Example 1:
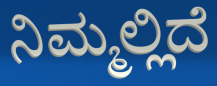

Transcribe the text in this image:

ನಿಮ್ಮಲ್ಲಿದೆ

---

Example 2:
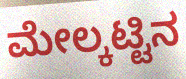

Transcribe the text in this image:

ಮೇಲ್ಕಟ್ಟಿನ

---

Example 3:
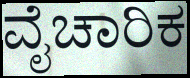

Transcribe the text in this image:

ವೈಚಾರಿಕ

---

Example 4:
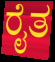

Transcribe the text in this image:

ರೈತ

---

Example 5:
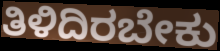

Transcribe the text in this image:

ತಿಳಿದಿರಬೇಕು